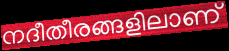
നദീതീരങ്ങളിലാണ്